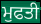
ਮੁਫਤੀ